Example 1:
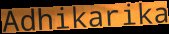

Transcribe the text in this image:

Adhikarika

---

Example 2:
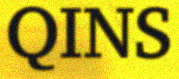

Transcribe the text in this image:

QINS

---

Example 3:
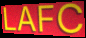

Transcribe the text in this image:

LAFC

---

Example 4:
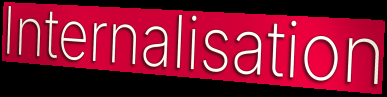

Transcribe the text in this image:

Internalisation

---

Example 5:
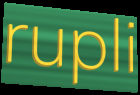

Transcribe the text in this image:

rupli